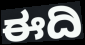
ಈದಿ